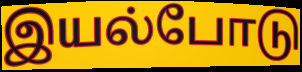
இயல்போடு